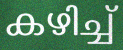
കഴിച്ച്